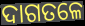
ଦାଗତଳେ